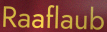
Raaflaub